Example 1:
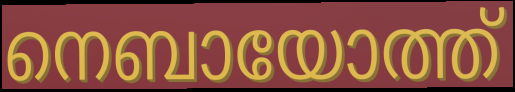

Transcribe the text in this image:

നെബായോത്ത്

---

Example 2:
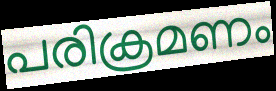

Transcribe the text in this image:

പരിക്രമണം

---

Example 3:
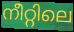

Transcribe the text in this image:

നീറ്റിലെ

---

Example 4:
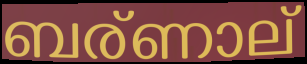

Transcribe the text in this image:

ബര്ണാല്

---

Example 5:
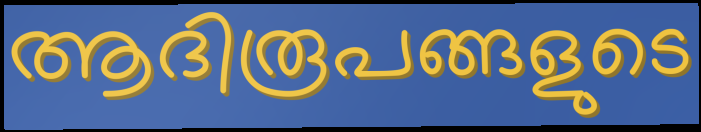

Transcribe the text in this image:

ആദിരൂപങ്ങളുടെ